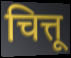
चित्तू